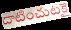
దాటించుటకై